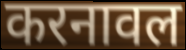
करनावल